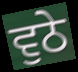
ਵੁਠੇ